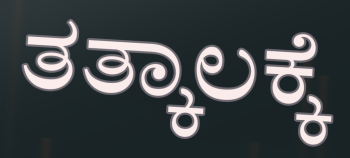
ತತ್ಕಾಲಕ್ಕೆ